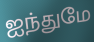
ஐந்துமே